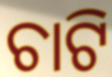
ଚାଟି